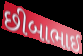
છીબાભાઈ